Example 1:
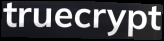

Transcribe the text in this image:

truecrypt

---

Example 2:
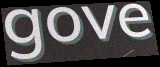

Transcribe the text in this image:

gove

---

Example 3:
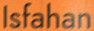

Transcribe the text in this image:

Isfahan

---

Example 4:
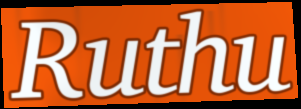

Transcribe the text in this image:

Ruthu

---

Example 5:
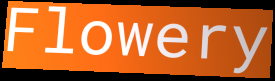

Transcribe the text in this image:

Flowery